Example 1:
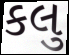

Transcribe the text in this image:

કલુ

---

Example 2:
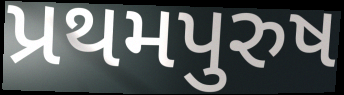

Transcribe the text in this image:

પ્રથમપુરુષ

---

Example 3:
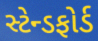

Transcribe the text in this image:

સ્ટેન્ડફોર્ડ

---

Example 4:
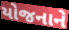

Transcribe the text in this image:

યોજનાને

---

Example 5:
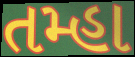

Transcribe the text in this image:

તમ્હા